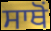
ਸਾਥੋਂ